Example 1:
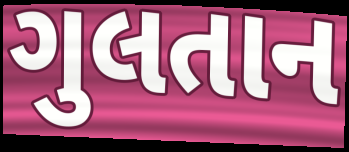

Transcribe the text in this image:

ગુલતાન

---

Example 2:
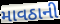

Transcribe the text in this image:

માવઠાની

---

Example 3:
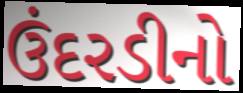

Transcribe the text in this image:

ઉંદરડીનો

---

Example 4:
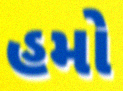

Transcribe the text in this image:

હમો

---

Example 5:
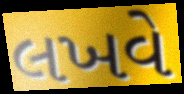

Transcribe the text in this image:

લખવે